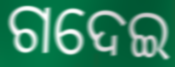
ଗଦେଇ